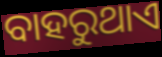
ବାହରୁଥାଏ